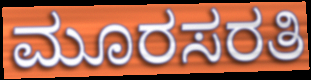
ಮೂರಸರತಿ